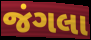
જંગલા